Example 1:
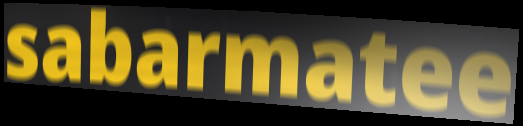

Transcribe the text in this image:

sabarmatee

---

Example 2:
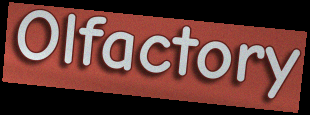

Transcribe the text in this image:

Olfactory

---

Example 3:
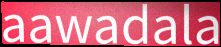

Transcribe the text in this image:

aawadala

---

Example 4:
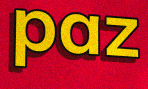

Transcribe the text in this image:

paz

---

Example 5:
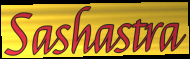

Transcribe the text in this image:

Sashastra